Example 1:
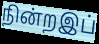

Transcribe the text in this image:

நின்றஇப்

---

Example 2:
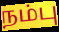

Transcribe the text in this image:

நம்பு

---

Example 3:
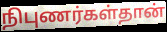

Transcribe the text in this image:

நிபுணர்கள்தான்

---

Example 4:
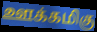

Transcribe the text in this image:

ஊக்கமிகு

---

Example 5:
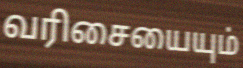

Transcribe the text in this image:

வரிசையையும்